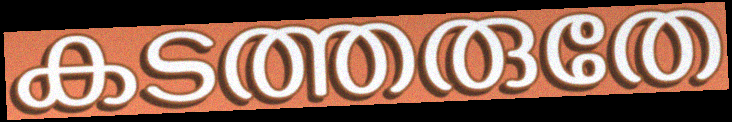
കടത്തരുതേ